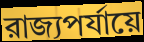
রাজ্যপর্যায়ে